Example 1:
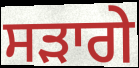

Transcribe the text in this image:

ਸੜਾਗੇ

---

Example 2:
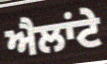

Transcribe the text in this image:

ਐਲਾਂਟੇ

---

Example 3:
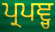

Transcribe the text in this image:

ਪ੍ਰਪਞ੍ਚ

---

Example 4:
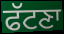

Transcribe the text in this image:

ਫੱਟਣਾ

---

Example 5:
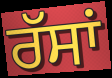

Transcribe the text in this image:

ਰੱਸਾਂ